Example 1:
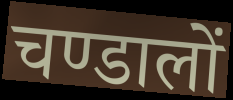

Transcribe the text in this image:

चण्डालों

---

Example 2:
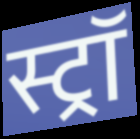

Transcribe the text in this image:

स्ट्रॉ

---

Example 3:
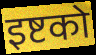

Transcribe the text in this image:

इष्टको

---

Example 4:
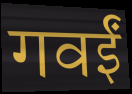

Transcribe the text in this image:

गवईं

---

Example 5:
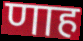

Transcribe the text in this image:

णाह